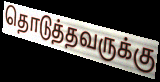
தொடுத்தவருக்கு